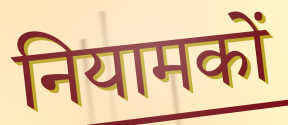
नियामकों